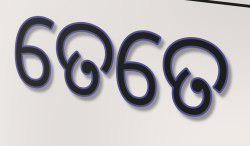
ତେତେ